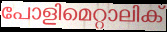
പോളിമെറ്റാലിക്